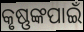
କୃଷ୍ଣଙ୍କପାଇଁ